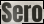
Sero